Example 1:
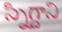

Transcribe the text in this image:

స్నిగ్దాని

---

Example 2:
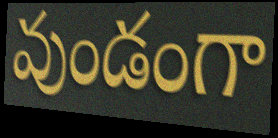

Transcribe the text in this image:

వుండంగా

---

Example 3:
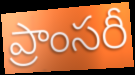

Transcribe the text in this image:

ప్రాంసరీ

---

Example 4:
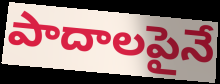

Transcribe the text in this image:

పాదాలపైనే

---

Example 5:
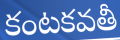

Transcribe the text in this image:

కంటకవతీ